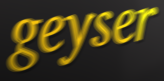
geyser